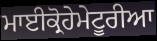
ਮਾਈਕ੍ਰੋਹੇਮੇਟੂਰੀਆ